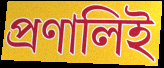
প্রণালিই